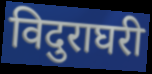
विदुराघरी